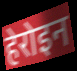
हेरोइन